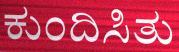
ಕುಂದಿಸಿತು